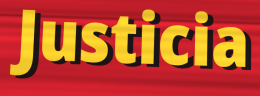
Justicia